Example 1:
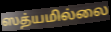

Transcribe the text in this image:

ஸத்யமில்லை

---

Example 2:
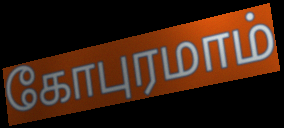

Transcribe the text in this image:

கோபுரமாம்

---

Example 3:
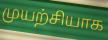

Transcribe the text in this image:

முயற்சியாக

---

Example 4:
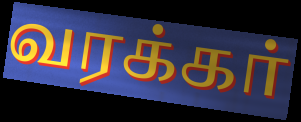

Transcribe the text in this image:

வரக்கர்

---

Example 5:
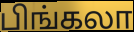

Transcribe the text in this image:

பிங்கலா